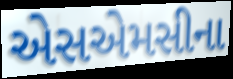
એસએમસીના